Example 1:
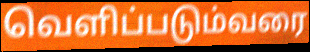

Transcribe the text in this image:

வெளிப்படும்வரை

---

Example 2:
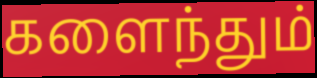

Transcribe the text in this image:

களைந்தும்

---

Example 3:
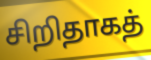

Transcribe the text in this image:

சிறிதாகத்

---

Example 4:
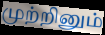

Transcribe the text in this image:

முற்றினும்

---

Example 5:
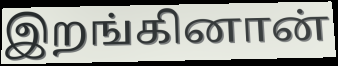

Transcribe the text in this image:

இறங்கினான்